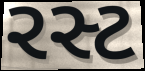
રસ્ટ